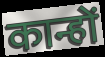
कान्हों